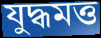
যুদ্ধমত্ত